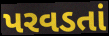
પરવડતાં